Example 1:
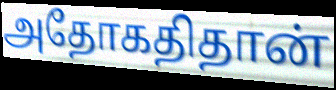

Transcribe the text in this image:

அதோகதிதான்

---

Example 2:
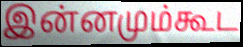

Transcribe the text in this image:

இன்னமும்கூட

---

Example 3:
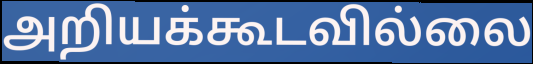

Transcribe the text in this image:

அறியக்கூடவில்லை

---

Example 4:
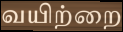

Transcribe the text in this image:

வயிற்றை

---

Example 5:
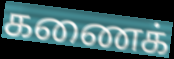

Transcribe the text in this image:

கணைக்